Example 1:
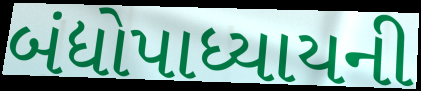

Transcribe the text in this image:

બંદ્યોપાધ્યાયની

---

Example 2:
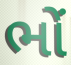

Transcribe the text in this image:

ભોં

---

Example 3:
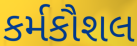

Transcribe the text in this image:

કર્મકૌશલ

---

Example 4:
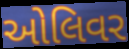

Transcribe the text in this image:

ઓલિવર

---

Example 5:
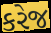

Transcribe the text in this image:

કરેજ